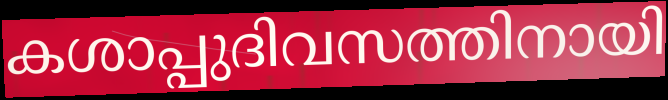
കശാപ്പുദിവസത്തിനായി